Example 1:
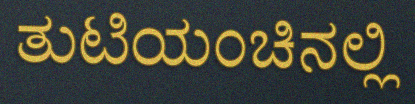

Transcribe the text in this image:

ತುಟಿಯಂಚಿನಲ್ಲಿ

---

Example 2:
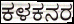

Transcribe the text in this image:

ಕಳಕನರ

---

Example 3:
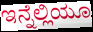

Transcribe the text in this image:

ಇನ್ನೆಲ್ಲಿಯೂ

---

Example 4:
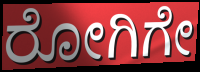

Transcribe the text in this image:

ರೋಗಿಗೇ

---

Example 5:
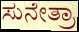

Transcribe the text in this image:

ಸುನೇತ್ರಾ